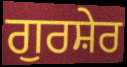
ਗੁਰਸ਼ੇਰ